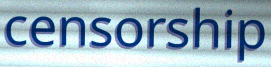
censorship